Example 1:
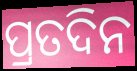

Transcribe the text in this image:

ପ୍ରତଦିନ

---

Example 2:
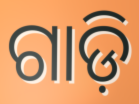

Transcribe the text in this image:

ଗାଡ଼ି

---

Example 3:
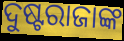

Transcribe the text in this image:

ଦୁଷ୍ଟରାଜାଙ୍କ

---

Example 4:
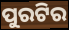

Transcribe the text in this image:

ପୁରଟିର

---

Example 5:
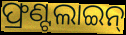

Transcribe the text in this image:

ଫ୍ରଣ୍ଟଲାଇନ୍